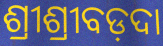
ଶ୍ରୀଶ୍ରୀବଡ଼ଦା